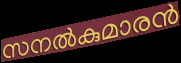
സനൽകുമാരൻ